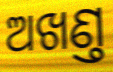
ଅଖଣ୍ତ